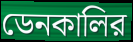
ডেনকালির